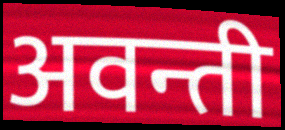
अवन्ती